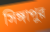
সিঙ্গাপুর